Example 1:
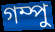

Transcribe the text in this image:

গম্পু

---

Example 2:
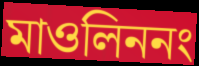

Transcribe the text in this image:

মাওলিননং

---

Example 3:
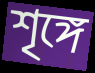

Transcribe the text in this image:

শৃঙ্গে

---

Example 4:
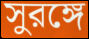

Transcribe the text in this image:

সুরঙ্গে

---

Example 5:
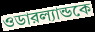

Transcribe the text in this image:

ওডারল্যান্ডকে